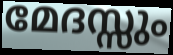
മേദസ്സും